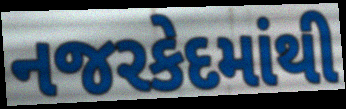
નજરકેદમાંથી